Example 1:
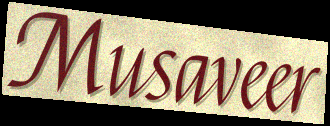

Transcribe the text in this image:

Musaveer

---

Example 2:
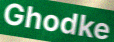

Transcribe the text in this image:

Ghodke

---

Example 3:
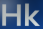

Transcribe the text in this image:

Hk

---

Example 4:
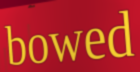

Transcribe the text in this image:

bowed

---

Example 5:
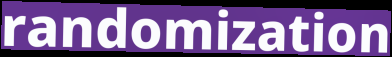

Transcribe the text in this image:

randomization